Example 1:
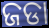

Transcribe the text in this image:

ଜଡା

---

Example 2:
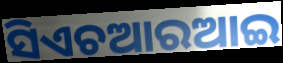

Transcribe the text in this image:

ସିଏଚଆରଆଇ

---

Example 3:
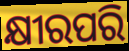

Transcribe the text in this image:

କ୍ଷୀରପରି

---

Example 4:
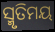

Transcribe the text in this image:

ସ୍ମୃତିମୟ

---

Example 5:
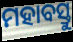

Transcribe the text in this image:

ମହାବସ୍ତୁ